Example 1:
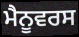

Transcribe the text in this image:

ਮੈਨੂਵਰਸ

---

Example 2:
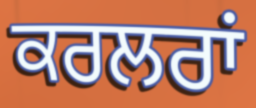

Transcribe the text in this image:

ਕਰਲਰਾਂ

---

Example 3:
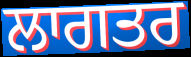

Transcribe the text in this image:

ਲਾਗਤਰ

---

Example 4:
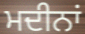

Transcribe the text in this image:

ਮਦੀਨਾਂ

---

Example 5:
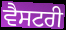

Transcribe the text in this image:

ਵੈਸਟਰੀ